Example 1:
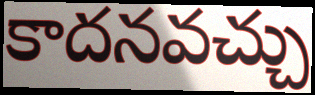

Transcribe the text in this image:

కాదనవచ్చు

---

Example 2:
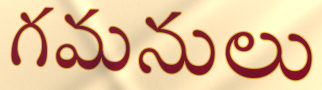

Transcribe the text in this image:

గమనులు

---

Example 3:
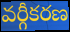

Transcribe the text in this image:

వర్గీకరణ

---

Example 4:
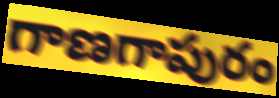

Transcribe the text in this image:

గాణగాపురం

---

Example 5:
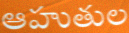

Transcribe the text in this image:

ఆహుతుల